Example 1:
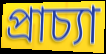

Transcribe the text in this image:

প্ৰাচ্যা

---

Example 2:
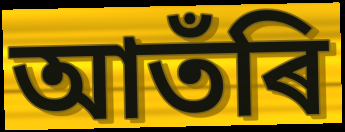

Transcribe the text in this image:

আতঁৰি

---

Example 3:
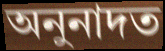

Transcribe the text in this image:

অনুনাদত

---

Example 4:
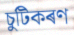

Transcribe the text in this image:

চুটিকৰণ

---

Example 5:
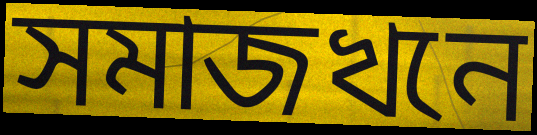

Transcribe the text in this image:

সমাজখনে